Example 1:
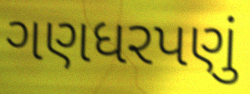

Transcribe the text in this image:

ગણધરપણું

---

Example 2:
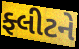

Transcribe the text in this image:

ફ્લીટને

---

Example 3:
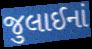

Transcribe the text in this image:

જુલાઈનાં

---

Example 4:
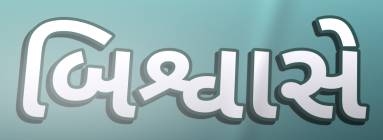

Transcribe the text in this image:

બિશ્વાસે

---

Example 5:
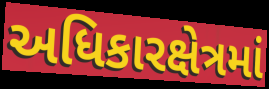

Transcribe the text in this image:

અધિકારક્ષેત્રમાં